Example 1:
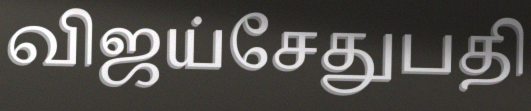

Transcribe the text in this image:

விஜய்சேதுபதி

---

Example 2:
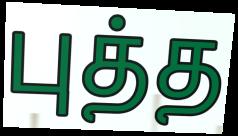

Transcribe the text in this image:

புத்த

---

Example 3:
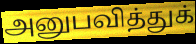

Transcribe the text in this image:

அனுபவித்துக்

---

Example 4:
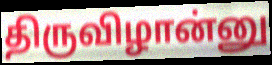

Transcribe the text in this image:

திருவிழான்னு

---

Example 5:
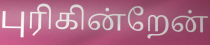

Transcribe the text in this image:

புரிகின்றேன்